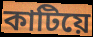
কাটিয়ে